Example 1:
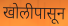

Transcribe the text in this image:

खोलीपासून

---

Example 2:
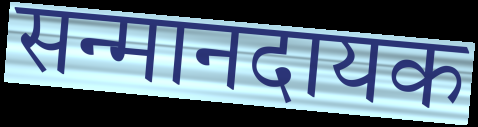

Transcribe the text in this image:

सन्मानदायक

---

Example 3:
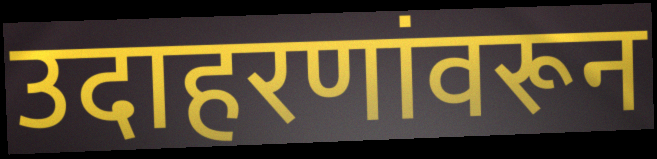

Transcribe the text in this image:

उदाहरणांवरून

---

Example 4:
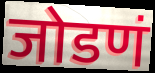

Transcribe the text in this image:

जोडणं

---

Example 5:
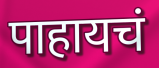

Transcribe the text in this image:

पाहायचं